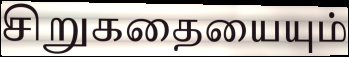
சிறுகதையையும்